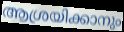
ആശ്രയിക്കാനും